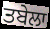
ਤਬੇਲਾ